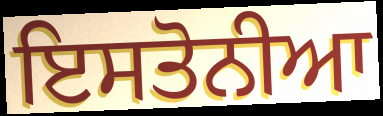
ਇਸਤੋਨੀਆ